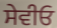
ਸੇਵੀਓ